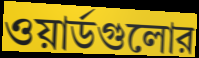
ওয়ার্ডগুলোর